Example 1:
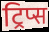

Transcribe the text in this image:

ट्रिप्स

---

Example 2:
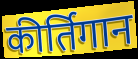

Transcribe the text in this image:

कीर्तिगान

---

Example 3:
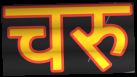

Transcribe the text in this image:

चरु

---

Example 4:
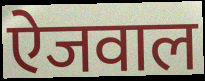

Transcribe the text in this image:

ऐजवाल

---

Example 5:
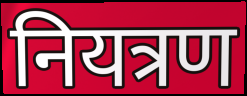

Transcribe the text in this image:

नियत्रण